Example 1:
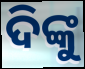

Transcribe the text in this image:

ଦିଙ୍କୁ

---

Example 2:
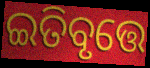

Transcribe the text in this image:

ଇତିବୃତ୍ତେ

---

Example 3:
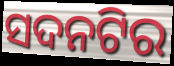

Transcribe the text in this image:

ସଦନଟିର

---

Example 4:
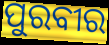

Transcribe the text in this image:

ପୁରବୀର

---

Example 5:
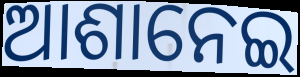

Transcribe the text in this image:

ଆଶାନେଇ